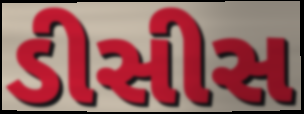
ડીસીસ